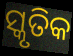
ସ୍କୃତିକ